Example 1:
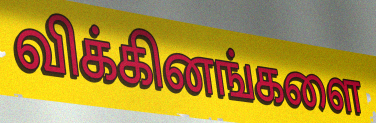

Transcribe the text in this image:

விக்கினங்களை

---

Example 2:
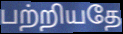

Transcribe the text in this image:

பற்றியதே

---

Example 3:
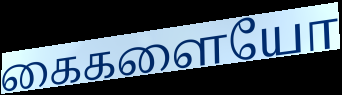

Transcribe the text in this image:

கைகளையோ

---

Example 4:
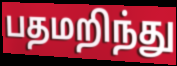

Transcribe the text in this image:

பதமறிந்து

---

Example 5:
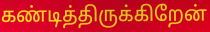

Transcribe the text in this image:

கண்டித்திருக்கிறேன்